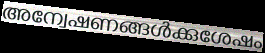
അന്വേഷണങ്ങൾക്കുശേഷം